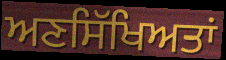
ਅਣਸਿੱਖਿਅਤਾਂ